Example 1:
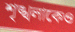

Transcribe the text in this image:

শৃঙ্খলাকেও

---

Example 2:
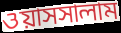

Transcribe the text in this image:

ওয়াসসালাম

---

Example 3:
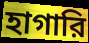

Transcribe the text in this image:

হাগারি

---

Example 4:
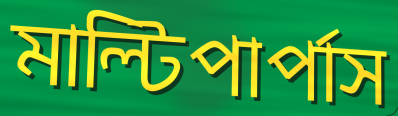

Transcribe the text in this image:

মাল্টিপার্পাস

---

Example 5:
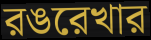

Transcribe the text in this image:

রঙরেখার